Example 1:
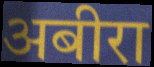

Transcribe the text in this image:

अबीरा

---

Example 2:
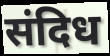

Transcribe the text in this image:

संदिध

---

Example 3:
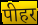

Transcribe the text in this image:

पीहर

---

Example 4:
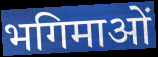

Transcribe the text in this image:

भगिमाओं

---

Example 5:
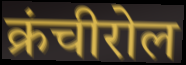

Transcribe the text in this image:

क्रंचीरोल